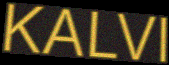
KALVI